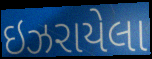
ઇઝરાયેલા